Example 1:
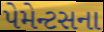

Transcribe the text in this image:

પેમેન્ટસના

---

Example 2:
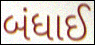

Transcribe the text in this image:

બંધાઈ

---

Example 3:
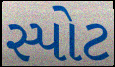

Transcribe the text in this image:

સ્પોટ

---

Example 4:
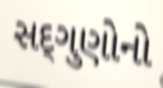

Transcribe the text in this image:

સદ્‌ગુણોનો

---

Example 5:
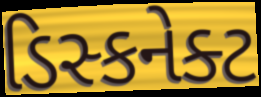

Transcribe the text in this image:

ડિસ્કનેક્ટ